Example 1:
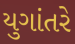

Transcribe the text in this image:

યુગાંતરે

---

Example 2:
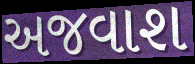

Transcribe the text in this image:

અજવાશ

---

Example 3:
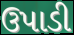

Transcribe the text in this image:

ઉપાડી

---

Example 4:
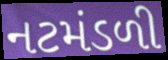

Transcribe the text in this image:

નટમંડળી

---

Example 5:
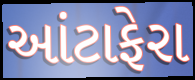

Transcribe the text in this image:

આંટાફેરા